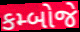
કમ્બોજે